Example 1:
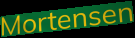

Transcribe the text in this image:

Mortensen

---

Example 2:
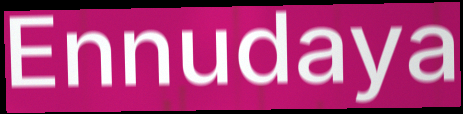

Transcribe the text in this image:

Ennudaya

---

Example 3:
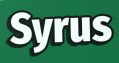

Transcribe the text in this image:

Syrus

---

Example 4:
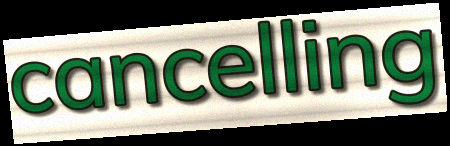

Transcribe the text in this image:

cancelling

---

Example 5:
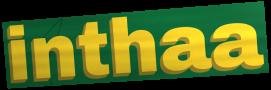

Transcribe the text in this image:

inthaa